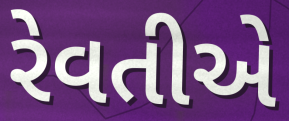
રેવતીએ